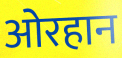
ओरहान